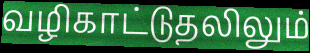
வழிகாட்டுதலிலும்